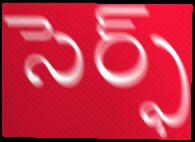
సెర్ఫ్